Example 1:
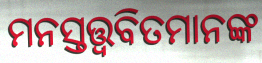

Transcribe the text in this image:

ମନସ୍ତତ୍ତ୍ୱବିତମାନଙ୍କ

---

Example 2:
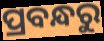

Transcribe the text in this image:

ପ୍ରବନ୍ଧରୁ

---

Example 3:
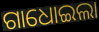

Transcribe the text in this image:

ଗାଧୋଇଲା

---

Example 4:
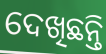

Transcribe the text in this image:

ଦେଖିଛନ୍ତି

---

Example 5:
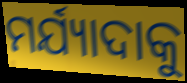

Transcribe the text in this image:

ମର୍ଯ୍ୟାଦାକୁ